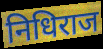
निधिराज